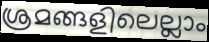
ശ്രമങ്ങളിലെല്ലാം